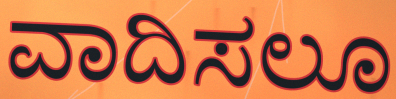
ವಾದಿಸಲೂ